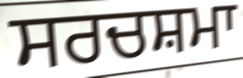
ਸਰਚਸ਼ਮਾ